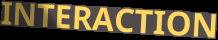
INTERACTION